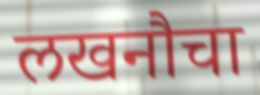
लखनौचा